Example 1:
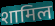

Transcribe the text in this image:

शामिल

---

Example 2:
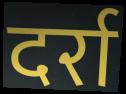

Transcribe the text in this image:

दर्रा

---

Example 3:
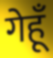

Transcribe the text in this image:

गेहूँ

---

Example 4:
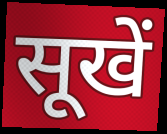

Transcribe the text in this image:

सूखें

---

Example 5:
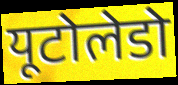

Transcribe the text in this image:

यूटोलेडो